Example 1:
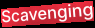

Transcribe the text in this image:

Scavenging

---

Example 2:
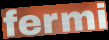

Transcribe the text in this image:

fermi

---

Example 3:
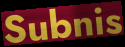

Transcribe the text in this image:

Subnis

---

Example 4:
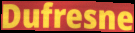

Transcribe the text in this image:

Dufresne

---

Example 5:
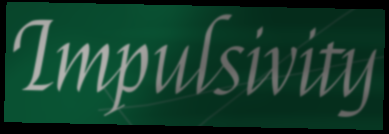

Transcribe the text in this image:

Impulsivity